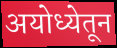
अयोध्येतून